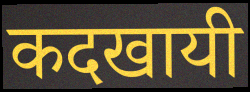
कदखायी